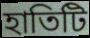
হাতিটি